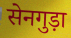
सेनगुड़ा